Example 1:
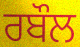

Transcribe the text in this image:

ਰਬੌਲ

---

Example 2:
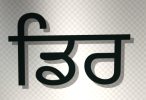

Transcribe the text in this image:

ਡਿਰ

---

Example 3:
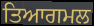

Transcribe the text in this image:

ਤਿਆਗਮਲ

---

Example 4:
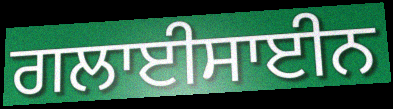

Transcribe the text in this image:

ਗਲਾਈਸਾਈਨ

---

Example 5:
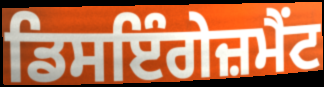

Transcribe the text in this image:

ਡਿਸਇੰਗੇਜ਼ਮੈਂਟ